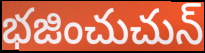
భజించుచున్